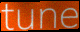
tune